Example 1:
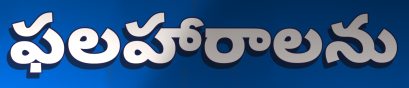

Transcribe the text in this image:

ఫలహారాలను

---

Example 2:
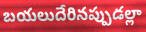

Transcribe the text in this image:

బయలుదేరినప్పుడల్లా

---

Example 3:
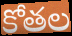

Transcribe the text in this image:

కోతల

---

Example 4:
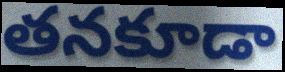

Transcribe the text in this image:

తనకూడా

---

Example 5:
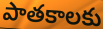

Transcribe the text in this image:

పాతకాలకు